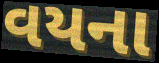
વયના